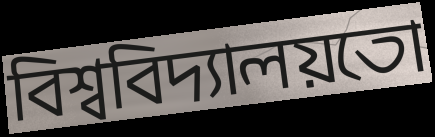
বিশ্ববিদ্যালয়তো